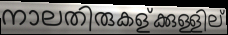
നാലതിരുകള്ക്കുള്ളില്